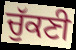
ਚੁੱਕਣੀ